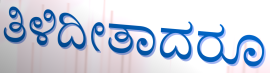
ತಿಳಿದೀತಾದರೂ